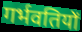
गर्भवतियों